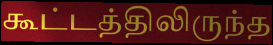
கூட்டத்திலிருந்த